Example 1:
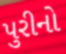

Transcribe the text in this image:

પુરીનો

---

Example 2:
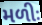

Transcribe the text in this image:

મળીઃ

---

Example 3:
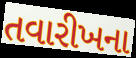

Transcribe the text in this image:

તવારીખના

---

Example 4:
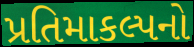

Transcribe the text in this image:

પ્રતિમાકલ્પનો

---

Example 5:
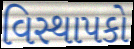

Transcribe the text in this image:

વિસ્થાપકો